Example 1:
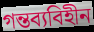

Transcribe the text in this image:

গন্তব্যবিহীন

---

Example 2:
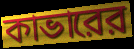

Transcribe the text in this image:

কাভারের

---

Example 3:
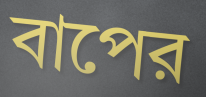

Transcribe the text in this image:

বাপের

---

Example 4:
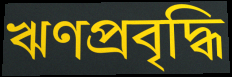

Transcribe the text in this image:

ঋণপ্রবৃদ্ধি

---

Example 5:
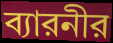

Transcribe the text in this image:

ব্যারনীর